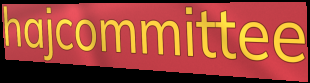
hajcommittee